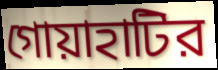
গোয়াহাটির